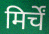
मिर्चें